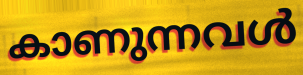
കാണുന്നവൾ